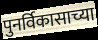
पुनर्विकासाच्या